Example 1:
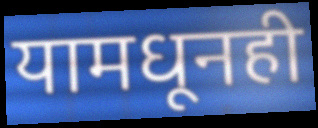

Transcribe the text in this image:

यामधूनही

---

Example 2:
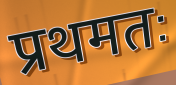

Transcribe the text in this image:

प्रथमतः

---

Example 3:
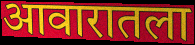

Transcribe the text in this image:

आवारातला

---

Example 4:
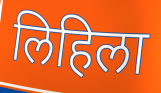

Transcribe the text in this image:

लिहिला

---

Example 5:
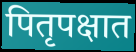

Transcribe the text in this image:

पितृपक्षात